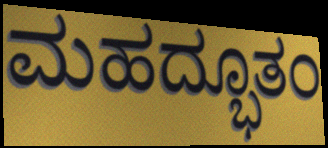
ಮಹದ್ಭೂತಂ